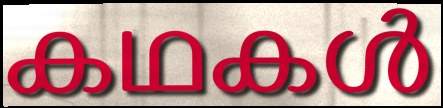
കഥകൾ